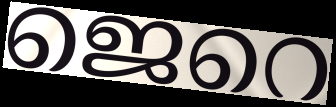
ജെറെ